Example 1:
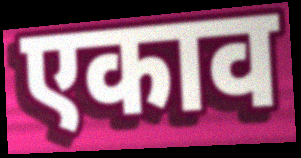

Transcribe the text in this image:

एकाव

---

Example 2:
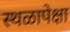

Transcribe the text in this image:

स्थळापेक्षा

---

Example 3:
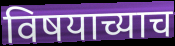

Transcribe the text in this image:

विषयाच्याच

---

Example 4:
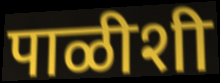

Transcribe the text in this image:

पाळीशी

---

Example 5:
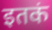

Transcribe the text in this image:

इतकं